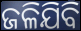
ଜଳିଯିବି